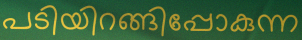
പടിയിറങ്ങിപ്പോകുന്ന